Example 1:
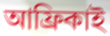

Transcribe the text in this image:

আফ্ৰিকাই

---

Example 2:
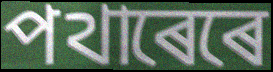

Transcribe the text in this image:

পথাৰেৰে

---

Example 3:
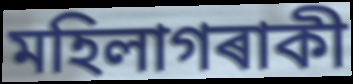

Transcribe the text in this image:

মহিলাগৰাকী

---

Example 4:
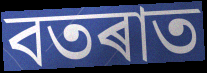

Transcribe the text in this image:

বতৰাত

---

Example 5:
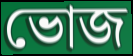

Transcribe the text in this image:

ভোজ